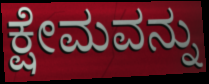
ಕ್ಷೇಮವನ್ನು